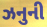
ઝનુની